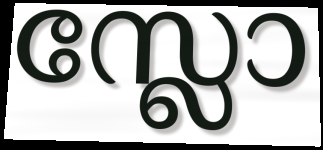
സ്ലോ